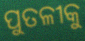
ପୁତଳୀକୁ